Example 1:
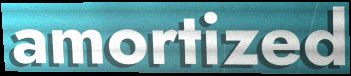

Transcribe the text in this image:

amortized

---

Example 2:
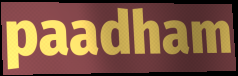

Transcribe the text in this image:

paadham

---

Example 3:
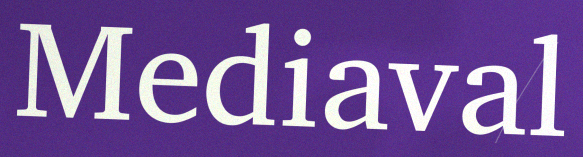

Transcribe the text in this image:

Mediaval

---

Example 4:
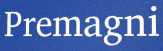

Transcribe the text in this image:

Premagni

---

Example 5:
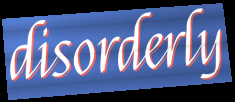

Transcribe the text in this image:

disorderly